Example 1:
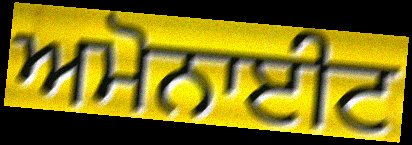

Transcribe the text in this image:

ਅਮੋਨਾਈਟ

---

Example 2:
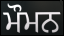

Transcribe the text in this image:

ਮੌਮਨ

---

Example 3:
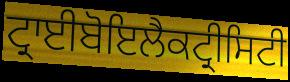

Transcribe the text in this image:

ਟ੍ਰਾਈਬੋਇਲੈਕਟ੍ਰੀਸਿਟੀ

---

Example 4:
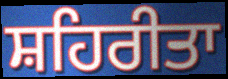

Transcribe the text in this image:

ਸ਼ਹਿਰੀਤਾ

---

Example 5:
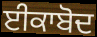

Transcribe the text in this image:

ਈਕਾਬੋਦ